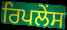
ਰਿਪਲੇਂਸ